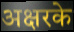
अक्षरके